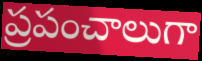
ప్రపంచాలుగా